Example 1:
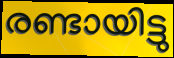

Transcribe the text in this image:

രണ്ടായിട്ടു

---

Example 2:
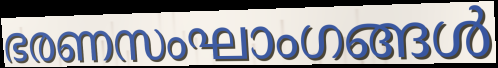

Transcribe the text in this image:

ഭരണസംഘാംഗങ്ങൾ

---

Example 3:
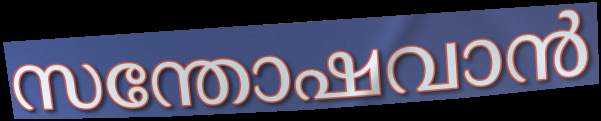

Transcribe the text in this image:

സന്തോഷവാൻ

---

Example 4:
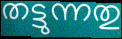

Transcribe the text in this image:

തട്ടുന്നതു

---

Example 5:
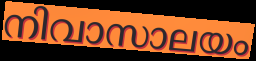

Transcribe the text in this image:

നിവാസാലയം